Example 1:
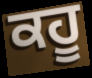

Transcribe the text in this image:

ਕਹੂ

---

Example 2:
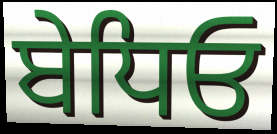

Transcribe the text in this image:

ਬੇਧਿਓ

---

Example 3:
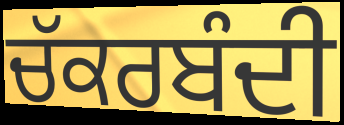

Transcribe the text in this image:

ਚੱਕਰਬੰਦੀ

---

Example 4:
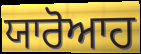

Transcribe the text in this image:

ਯਾਰੋਆਹ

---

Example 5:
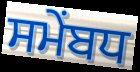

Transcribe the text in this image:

ਸਮੇਂਬਧ